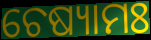
ଚେଷ୍ୟାମଃ